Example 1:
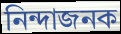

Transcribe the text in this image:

নিন্দাজনক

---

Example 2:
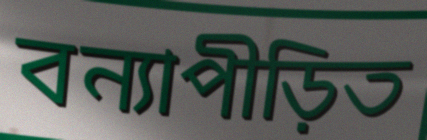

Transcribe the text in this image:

বন্যাপীড়িত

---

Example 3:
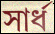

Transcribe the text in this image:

সার্ধ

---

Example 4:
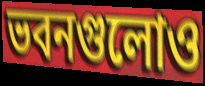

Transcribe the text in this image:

ভবনগুলোও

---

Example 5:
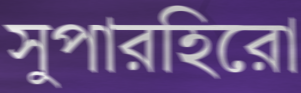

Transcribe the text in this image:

সুপারহিরো